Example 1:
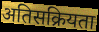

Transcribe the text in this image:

अतिसक्रियता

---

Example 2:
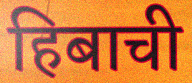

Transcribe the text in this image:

हिबाची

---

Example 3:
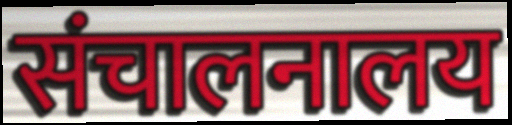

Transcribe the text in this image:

संचालनालय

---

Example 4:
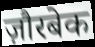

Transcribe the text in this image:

ज़ौरबेक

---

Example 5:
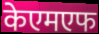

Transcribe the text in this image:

केएमएफ